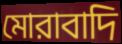
মোরাবাদি